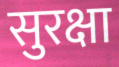
सुरक्षा